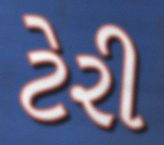
ટેરી